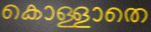
കൊള്ളാതെ